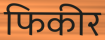
फिकीर